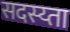
सदस्य्ता